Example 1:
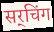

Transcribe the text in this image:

सर्चिंग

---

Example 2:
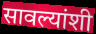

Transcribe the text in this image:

सावल्यांशी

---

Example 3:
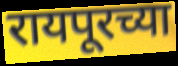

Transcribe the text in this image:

रायपूरच्या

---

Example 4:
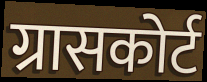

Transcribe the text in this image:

ग्रासकोर्ट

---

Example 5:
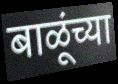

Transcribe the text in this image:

बाळूंच्या